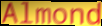
Almond